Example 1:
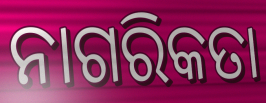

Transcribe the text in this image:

ନାଗରିକତା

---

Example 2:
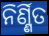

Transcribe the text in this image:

ନିର୍ଣ୍ଣିତ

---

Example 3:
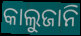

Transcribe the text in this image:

କାଲୁଜାନି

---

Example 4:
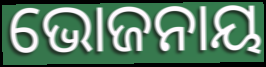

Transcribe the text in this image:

ଭୋଜନାୟ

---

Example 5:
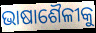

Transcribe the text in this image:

ଭାଷାଶୈଳୀକୁ